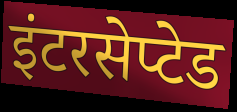
इंटरसेप्टेड